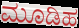
ಮೂಡಿಹ